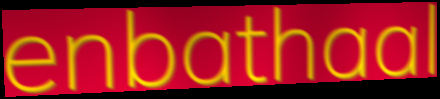
enbathaal